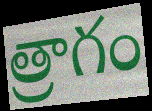
త్రాగం